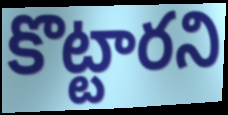
కొట్టారని